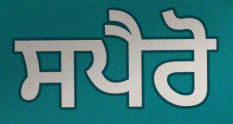
ਸਪੈਰੋ